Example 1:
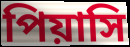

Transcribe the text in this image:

পিয়াসি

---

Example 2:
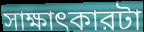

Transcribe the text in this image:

সাক্ষাৎকারটা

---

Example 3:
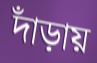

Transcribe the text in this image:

দাঁড়ায়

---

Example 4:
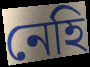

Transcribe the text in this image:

নেহি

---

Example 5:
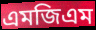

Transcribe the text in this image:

এমজিএম